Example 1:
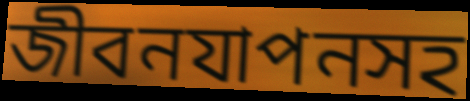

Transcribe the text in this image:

জীবনযাপনসহ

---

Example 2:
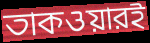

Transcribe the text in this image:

তাকওয়ারই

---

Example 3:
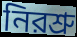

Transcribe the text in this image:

নিরশ্রু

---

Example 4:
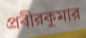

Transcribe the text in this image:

প্রবীরকুমার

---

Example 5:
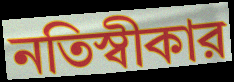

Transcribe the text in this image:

নতিস্বীকার